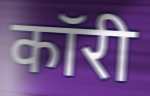
कॉरी